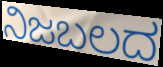
ನಿಜಬಲದ